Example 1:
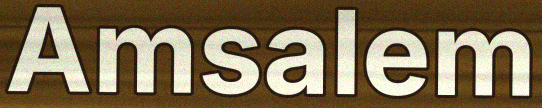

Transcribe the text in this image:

Amsalem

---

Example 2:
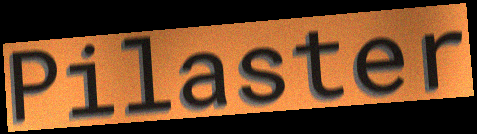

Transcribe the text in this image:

Pilaster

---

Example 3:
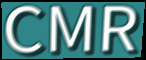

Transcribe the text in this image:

CMR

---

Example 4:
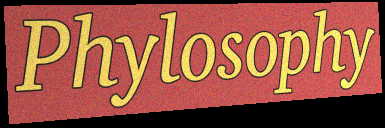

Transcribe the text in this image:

Phylosophy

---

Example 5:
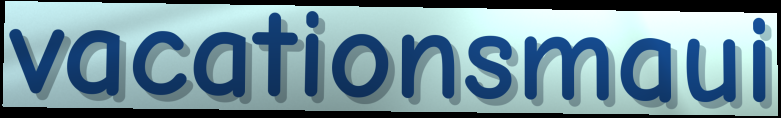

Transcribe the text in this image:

vacationsmaui